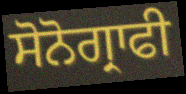
ਸੋਨੋਗ੍ਰਾਫੀ